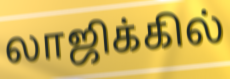
லாஜிக்கில்